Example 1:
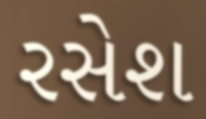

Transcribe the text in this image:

રસેશ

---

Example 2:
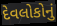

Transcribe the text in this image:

દેવલોકોનું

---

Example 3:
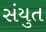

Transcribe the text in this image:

સંયુત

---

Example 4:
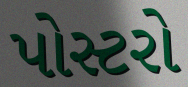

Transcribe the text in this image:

પોસ્ટરો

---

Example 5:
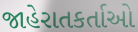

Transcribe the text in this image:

જાહેરાતકર્તાઓ